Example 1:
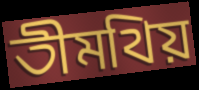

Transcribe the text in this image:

তীমথিয়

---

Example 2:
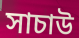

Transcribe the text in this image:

সাচাউ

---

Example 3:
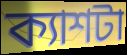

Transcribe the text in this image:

ক্যাশটা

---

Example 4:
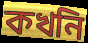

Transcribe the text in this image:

কখনি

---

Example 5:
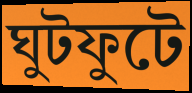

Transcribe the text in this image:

ঘুটফুটে